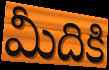
మీదికి